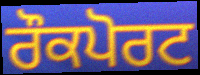
ਰੌਕਪੋਰਟ